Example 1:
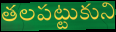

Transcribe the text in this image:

తలపట్టుకుని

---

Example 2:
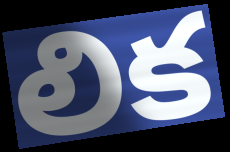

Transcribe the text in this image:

లిక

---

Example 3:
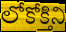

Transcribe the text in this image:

లోకోక్తిని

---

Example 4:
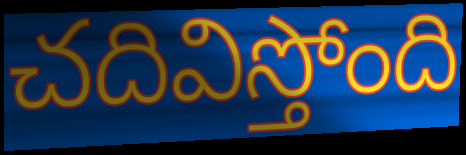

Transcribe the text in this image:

చదివిస్తోంది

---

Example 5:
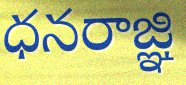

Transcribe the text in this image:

ధనరాజ్ఞి